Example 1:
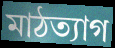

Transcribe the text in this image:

মাঠত্যাগ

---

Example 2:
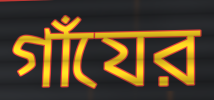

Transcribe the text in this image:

গাঁযের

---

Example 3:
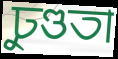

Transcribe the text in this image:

ঢুণ্ডতা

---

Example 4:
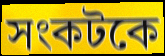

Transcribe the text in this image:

সংকটকে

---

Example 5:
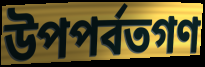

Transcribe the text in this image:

উপপর্বতগণ